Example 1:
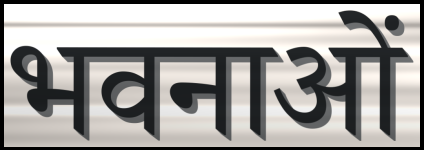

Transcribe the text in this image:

भवनाओं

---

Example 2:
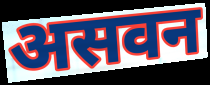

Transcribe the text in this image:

असवन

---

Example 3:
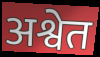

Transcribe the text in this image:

अश्वेत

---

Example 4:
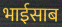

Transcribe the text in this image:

भाईसाब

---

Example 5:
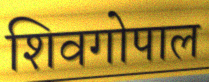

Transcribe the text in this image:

शिवगोपाल